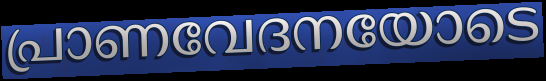
പ്രാണവേദനയോടെ